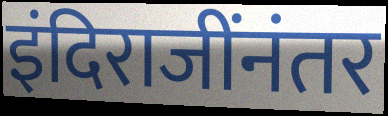
इंदिराजींनंतर